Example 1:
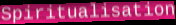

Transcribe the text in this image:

Spiritualisation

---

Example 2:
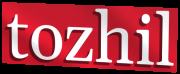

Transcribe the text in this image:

tozhil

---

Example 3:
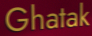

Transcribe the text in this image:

Ghatak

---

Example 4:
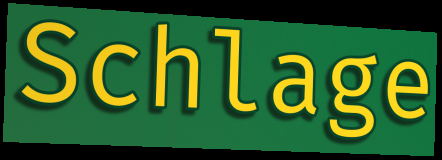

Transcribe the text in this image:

Schlage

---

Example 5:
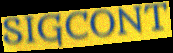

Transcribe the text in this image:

SIGCONT